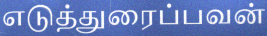
எடுத்துரைப்பவன்